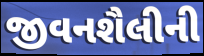
જીવનશૈલીની